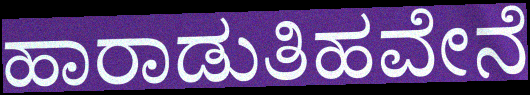
ಹಾರಾಡುತಿಹವೇನೆ